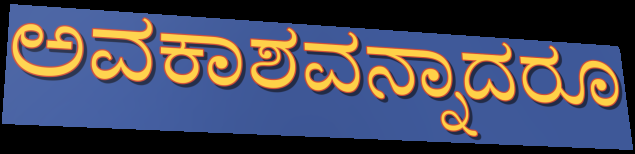
ಅವಕಾಶವನ್ನಾದರೂ